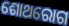
ଶୋଥରୋଗ